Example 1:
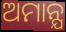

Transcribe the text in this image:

ଅମାନ୍ଯ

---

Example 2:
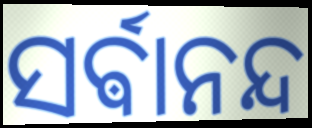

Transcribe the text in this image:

ସର୍ଵାନନ୍ଦ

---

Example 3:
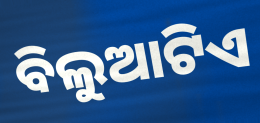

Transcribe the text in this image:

ବିଲୁଆଟିଏ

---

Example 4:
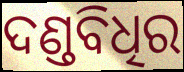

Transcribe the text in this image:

ଦଣ୍ଡବିଧିର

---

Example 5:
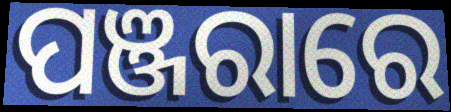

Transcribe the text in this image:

ପଞ୍ଜରାରେ